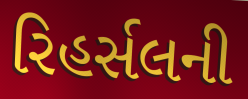
રિહર્સલની